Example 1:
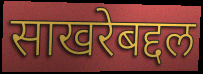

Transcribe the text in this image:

साखरेबद्दल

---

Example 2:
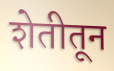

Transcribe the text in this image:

शेतीतून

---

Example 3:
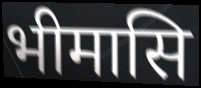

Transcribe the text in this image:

भीमासि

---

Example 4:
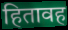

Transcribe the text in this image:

हितावह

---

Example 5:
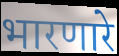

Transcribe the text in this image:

भारणारे